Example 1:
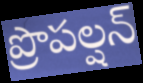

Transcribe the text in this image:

ప్రొపల్షన్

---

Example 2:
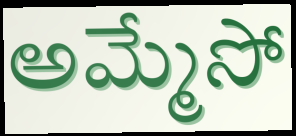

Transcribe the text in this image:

అమ్మేసో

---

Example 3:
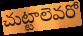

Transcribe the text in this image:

చుట్టాలెవరో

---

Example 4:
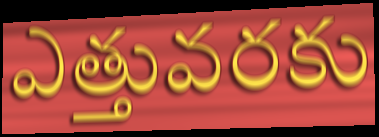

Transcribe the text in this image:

ఎత్తువరకు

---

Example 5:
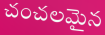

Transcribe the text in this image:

చంచలమైన